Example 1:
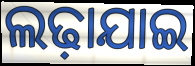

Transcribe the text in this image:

ଲଢ଼ାଯାଇ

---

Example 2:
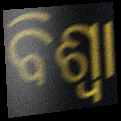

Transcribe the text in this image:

ବିଶ୍ବା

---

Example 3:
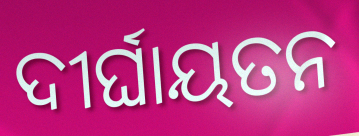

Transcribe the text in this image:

ଦୀର୍ଘାୟତନ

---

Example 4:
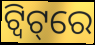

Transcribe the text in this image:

ଟ୍ବିଟ୍‌ରେ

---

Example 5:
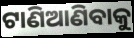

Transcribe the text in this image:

ଟାଣିଆଣିବାକୁ